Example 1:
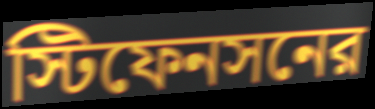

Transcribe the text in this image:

স্টিফেনসনের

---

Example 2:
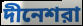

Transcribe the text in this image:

দীনেশরা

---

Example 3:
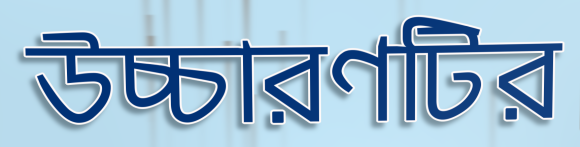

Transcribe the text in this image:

উচ্চারণটির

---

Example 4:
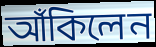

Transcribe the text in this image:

আঁকিলেন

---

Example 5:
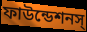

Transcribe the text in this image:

ফাউন্ডেশনস্